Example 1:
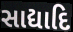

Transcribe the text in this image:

સાદ્યાદિ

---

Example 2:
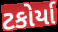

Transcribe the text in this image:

ટકોર્યા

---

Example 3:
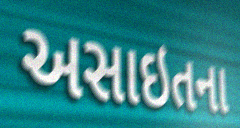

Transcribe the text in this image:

અસાઇતના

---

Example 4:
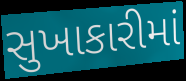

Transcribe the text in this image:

સુખાકારીમાં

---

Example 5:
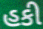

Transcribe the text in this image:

હકી